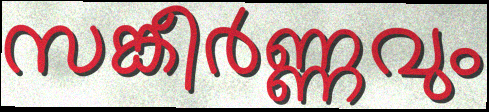
സങ്കീർണ്ണവും